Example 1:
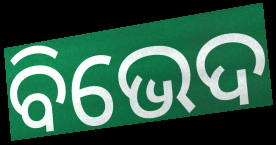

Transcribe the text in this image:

ବିଭେଦ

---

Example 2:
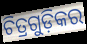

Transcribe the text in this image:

ଚିତ୍ରଗୁଡ଼ିକର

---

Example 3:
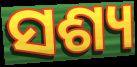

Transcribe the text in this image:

ସଶ୍ୟ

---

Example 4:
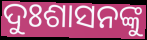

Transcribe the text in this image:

ଦୁଃଶାସନଙ୍କୁ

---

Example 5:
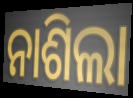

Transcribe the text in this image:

ନାଶିଲା